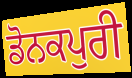
ਡੋਨਕਪੁਰੀ